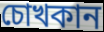
চোখকান